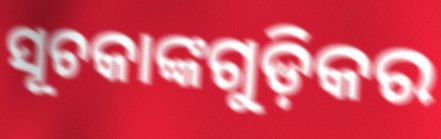
ସୂଚକାଙ୍କଗୁଡ଼ିକର